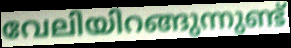
വേലിയിറങ്ങുന്നുണ്ട്